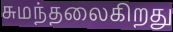
சுமந்தலைகிறது